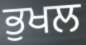
ਭੁਖਲ